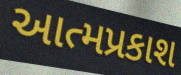
આત્મપ્રકાશ